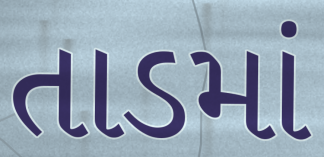
તાડમાં